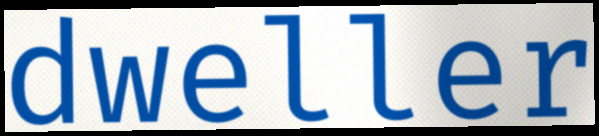
dweller